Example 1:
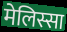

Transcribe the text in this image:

मेलिस्सा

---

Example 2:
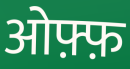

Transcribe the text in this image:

ओफ़्फ़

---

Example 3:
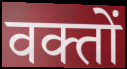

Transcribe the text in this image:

वक्तों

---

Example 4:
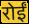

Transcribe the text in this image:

रोईं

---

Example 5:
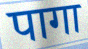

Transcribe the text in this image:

पागा